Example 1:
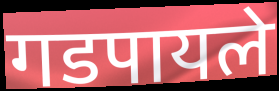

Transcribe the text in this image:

गडपायले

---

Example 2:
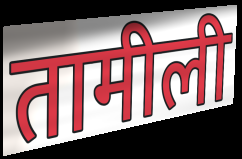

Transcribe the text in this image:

तामीली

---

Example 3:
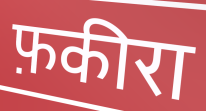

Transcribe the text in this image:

फ़कीरा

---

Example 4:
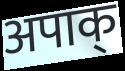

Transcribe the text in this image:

अपाक्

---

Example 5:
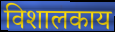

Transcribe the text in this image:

विशालकाय